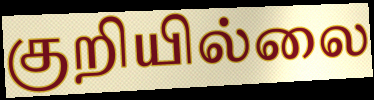
குறியில்லை